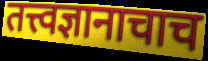
तत्त्वज्ञानाचाच